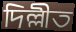
দিল্লীত